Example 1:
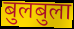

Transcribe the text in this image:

बुलबुला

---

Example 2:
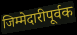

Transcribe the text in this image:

जिम्मेदारीपूर्वक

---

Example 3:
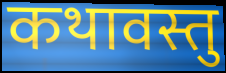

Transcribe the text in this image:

कथावस्तु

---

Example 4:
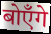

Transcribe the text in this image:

बोएँगे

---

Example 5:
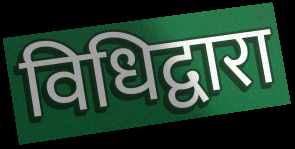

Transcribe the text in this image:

विधिद्वारा